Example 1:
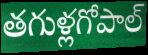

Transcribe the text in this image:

తగుళ్లగోపాల్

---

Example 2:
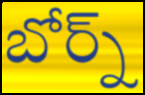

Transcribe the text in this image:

బోర్న్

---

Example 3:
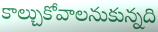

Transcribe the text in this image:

కాల్చుకోవాలనుకున్నది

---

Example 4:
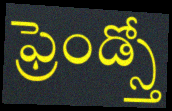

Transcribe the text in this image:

ఫ్రెండ్స్తో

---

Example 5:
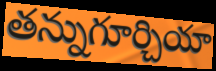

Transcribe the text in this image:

తన్నుగూర్చియా